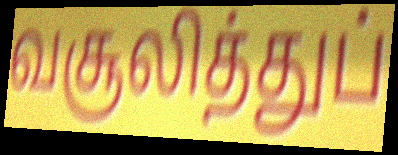
வசூலித்துப்